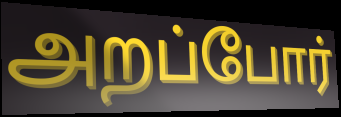
அறப்போர்